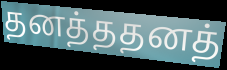
தனத்ததனத்